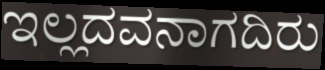
ಇಲ್ಲದವನಾಗದಿರು